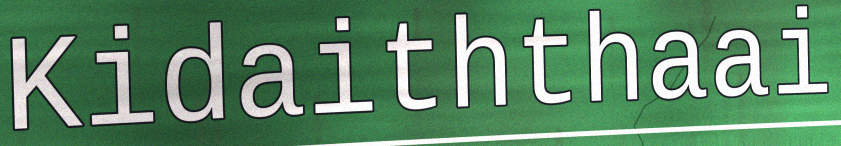
Kidaiththaai